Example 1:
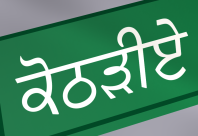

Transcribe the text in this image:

ਕੋਠੜੀਏ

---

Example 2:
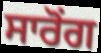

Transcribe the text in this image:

ਸਾਰੋਂਗ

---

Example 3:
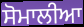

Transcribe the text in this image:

ਸੋਮਾਲੀਆ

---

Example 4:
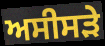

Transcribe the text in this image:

ਅਸੀਸੜੇ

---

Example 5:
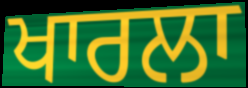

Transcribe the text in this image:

ਖਾਰਲਾ